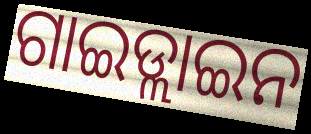
ଗାଇଡ୍ଲାଇନ